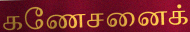
கணேசனைக்